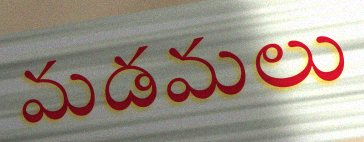
మడమలు